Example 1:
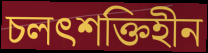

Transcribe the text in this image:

চলৎশক্তিহীন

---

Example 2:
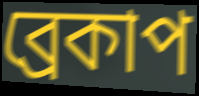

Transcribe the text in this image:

ব্রেকাপ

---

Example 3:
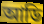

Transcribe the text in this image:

আডি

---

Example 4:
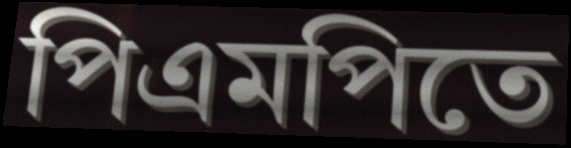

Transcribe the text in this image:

পিএমপিতে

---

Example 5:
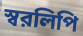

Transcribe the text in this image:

স্বরলিপি